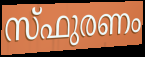
സ്ഫുരണം